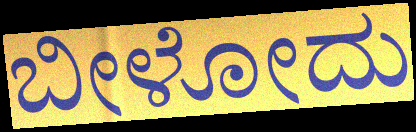
ಬೀಳೋದು